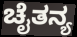
ಚೈತನ್ಯ